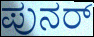
ಪುನರ್